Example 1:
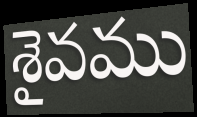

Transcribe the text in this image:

శైవము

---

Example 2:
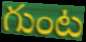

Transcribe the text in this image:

గుంట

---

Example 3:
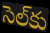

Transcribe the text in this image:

సెల్‌కు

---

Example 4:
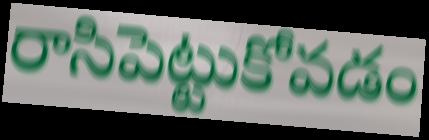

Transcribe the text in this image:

రాసిపెట్టుకోవడం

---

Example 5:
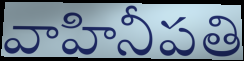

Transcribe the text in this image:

వాహినీపతి